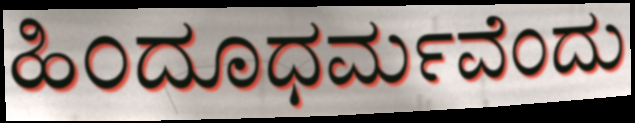
ಹಿಂದೂಧರ್ಮವೆಂದು